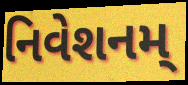
નિવેશનમ્